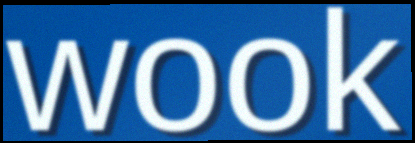
wook